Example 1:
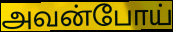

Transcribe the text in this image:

அவன்போய்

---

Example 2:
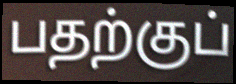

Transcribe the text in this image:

பதற்குப்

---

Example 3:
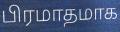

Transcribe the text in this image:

பிரமாதமாக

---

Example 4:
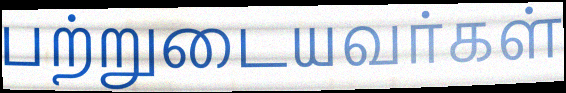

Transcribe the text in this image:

பற்றுடையவர்கள்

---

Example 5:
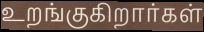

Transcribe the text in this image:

உறங்குகிறார்கள்